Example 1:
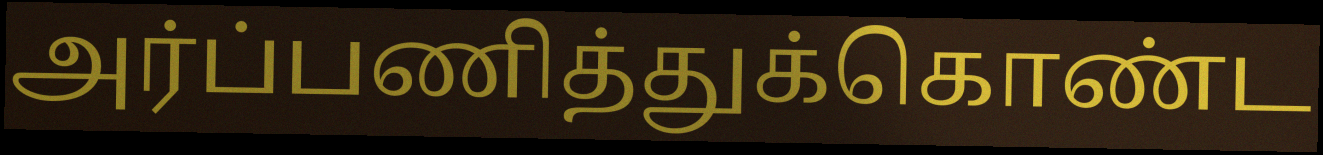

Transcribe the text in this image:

அர்ப்பணித்துக்கொண்ட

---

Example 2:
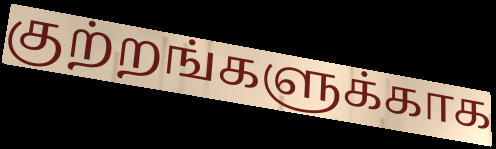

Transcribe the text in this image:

குற்றங்களுக்காக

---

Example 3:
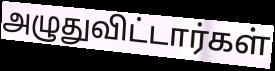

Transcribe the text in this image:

அழுதுவிட்டார்கள்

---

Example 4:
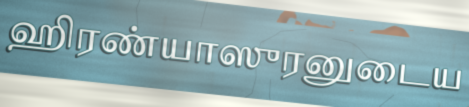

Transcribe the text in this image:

ஹிரண்யாஸுரனுடைய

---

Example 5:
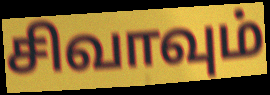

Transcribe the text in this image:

சிவாவும்